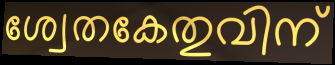
ശ്വേതകേതുവിന്